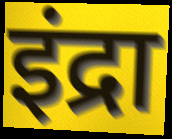
इंद्रा